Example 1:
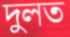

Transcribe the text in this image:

দুলত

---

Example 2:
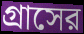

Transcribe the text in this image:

গ্রাসের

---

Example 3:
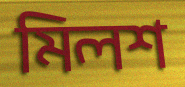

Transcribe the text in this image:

মিলশ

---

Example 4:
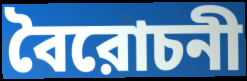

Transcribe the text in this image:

বৈরোচনী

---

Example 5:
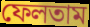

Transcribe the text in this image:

ফেলতাম